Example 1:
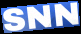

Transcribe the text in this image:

SNN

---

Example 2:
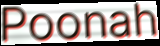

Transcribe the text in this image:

Poonah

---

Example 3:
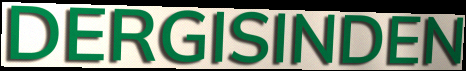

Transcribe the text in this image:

DERGISINDEN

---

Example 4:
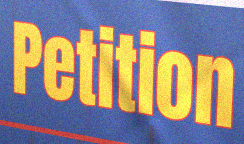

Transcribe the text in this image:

Petition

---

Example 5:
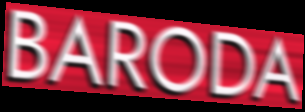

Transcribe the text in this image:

BARODA